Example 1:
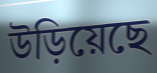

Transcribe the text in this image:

উড়িয়েছে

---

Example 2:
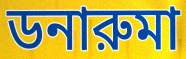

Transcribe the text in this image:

ডনারুমা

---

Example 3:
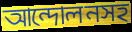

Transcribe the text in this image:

আন্দোলনসহ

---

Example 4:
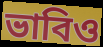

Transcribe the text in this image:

ভাবিও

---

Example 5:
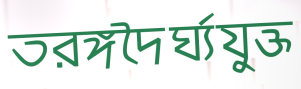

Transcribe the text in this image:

তরঙ্গদৈর্ঘ্যযুক্ত